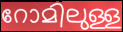
റോമിലുള്ള